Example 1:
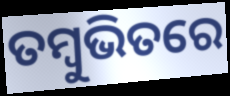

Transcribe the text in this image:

ତମ୍ବୁଭିତରେ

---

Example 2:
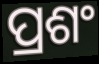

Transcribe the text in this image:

ପ୍ରଶଂ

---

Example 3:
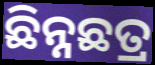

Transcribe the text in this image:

ଛିନ୍ନଛତ୍ର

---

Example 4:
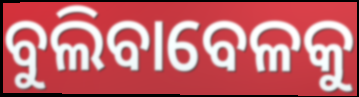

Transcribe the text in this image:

ବୁଲିବାବେଳକୁ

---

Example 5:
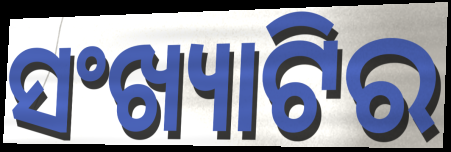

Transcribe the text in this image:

ସଂଖ୍ୟାଟିର